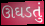
ઊઘડતું